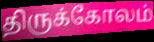
திருக்கோலம்